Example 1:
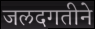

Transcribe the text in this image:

जलदगतीने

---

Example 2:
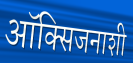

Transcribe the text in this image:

ऑक्सिजनाशी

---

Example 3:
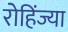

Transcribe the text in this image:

रोहिंज्या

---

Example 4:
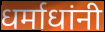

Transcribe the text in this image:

धर्माधांनी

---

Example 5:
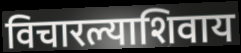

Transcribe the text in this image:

विचारल्याशिवाय